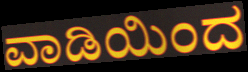
ವಾಡಿಯಿಂದ